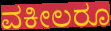
ವಕೀಲರೂ